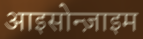
आइसोन्ज़ाइम